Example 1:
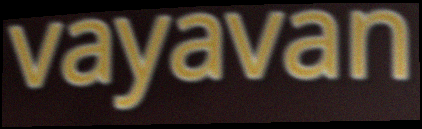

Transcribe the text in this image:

vayavan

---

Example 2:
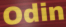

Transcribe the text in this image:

Odin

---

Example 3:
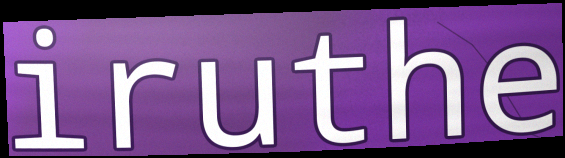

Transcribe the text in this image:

iruthe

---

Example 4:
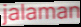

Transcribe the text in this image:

jalaman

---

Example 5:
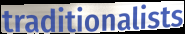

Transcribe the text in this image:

traditionalists